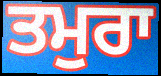
ਤਮੁਰਾ